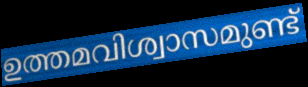
ഉത്തമവിശ്വാസമുണ്ട്